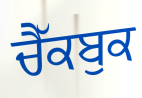
ਚੈੱਕਬੁਕ